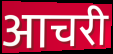
आचरी